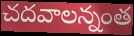
చదవాలన్నంత